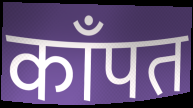
काँपत